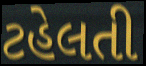
ટહેલતી